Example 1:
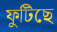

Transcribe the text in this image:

ফুটিছে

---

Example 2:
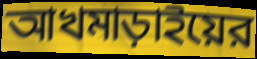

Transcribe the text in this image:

আখমাড়াইয়ের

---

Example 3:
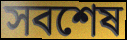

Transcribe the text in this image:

সবশেষ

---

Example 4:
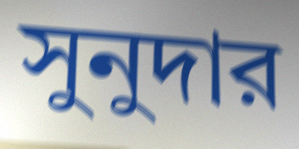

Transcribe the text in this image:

সুনুদার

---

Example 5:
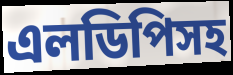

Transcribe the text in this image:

এলডিপিসহ